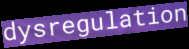
dysregulation